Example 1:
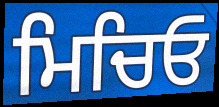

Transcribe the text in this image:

ਮਿਚਿਓ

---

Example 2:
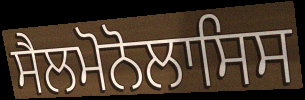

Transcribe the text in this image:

ਸੈਲਮੋਨੋਲਾਸਿਸ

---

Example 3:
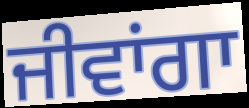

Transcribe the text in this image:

ਜੀਵਾਂਗਾ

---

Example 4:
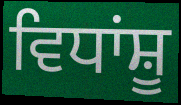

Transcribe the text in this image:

ਵਿਧਾਂਸ਼ੂ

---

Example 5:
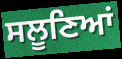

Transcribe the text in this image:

ਸਲੂਣਿਆਂ